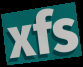
xfs